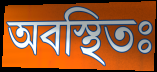
অবস্থিতঃ